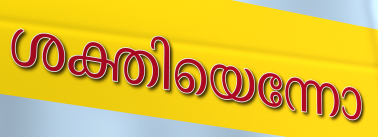
ശക്തിയെന്നോ